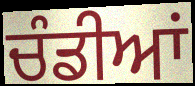
ਚੰਡੀਆਂ